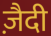
ज़ैदी